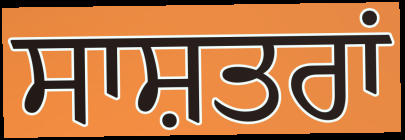
ਸਾਸ਼ਤਰਾਂ